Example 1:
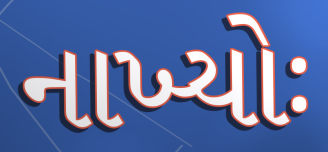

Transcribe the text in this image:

નાખ્યોઃ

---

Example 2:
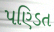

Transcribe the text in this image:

પણ્ડિત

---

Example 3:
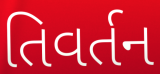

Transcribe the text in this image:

તિવર્તન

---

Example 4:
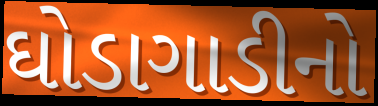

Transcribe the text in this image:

ઘોડાગાડીનો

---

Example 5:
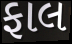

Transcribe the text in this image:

ફાલ